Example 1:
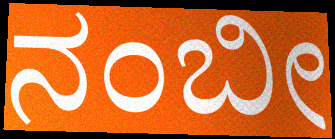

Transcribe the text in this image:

ನಂಬೀ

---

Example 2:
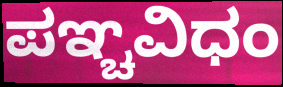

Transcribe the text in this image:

ಪಞ್ಚವಿಧಂ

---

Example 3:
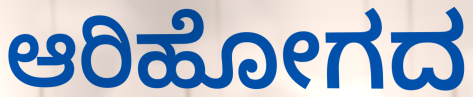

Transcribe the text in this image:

ಆರಿಹೋಗದ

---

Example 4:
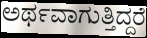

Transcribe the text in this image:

ಅರ್ಥವಾಗುತ್ತಿದ್ದರೆ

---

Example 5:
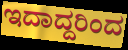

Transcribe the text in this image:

ಇದಾದ್ದರಿಂದ